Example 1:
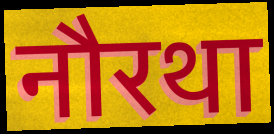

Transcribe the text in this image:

नौरथा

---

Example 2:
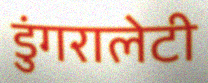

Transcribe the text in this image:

डुंगरालेटी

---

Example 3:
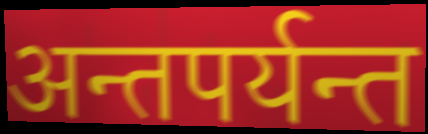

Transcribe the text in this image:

अन्तपर्यन्त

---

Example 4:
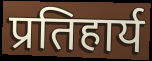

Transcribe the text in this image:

प्रतिहार्य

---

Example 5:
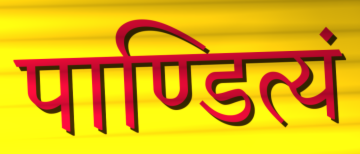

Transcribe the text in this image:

पाण्डित्यं